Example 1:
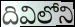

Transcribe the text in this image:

దివిలోని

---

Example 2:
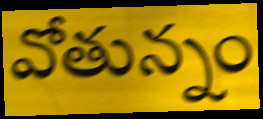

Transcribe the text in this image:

వోతున్నం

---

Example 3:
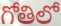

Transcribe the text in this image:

గోతిలో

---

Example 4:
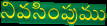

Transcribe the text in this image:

నివసింపుము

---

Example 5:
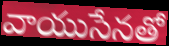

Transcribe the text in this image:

వాయుసేనతో